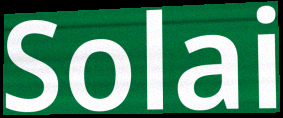
Solai